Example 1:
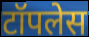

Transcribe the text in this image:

टॉपलेस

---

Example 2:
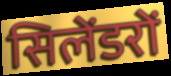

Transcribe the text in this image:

सिलेंडरों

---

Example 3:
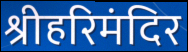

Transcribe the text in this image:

श्रीहरिमंदिर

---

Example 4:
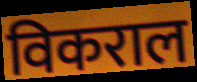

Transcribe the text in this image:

विकराल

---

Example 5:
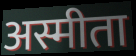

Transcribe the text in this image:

अस्मीता